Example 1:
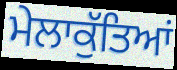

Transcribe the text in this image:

ਮੇਲਾਕੁੱਤਿਆਂ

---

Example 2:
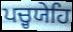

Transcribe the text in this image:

ਪਚ੍ਚਯੇਹਿ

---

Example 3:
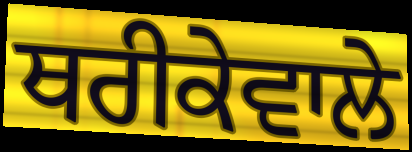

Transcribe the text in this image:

ਥਰੀਕੇਵਾਲੇ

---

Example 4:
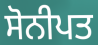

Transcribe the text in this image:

ਸੋਨੀਪਤ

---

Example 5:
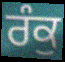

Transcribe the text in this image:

ਰੰਕੁ